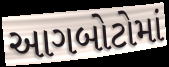
આગબોટોમાં